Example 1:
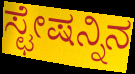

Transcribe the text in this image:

ಸ್ಟೇಷನ್ನಿನ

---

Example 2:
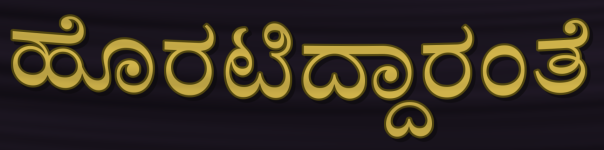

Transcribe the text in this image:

ಹೊರಟಿದ್ದಾರಂತೆ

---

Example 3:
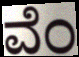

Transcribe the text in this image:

ವೆಂ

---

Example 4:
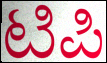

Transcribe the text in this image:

ಟಿಪಿ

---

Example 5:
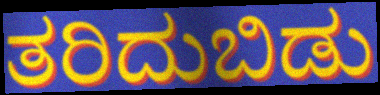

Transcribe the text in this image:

ತರಿದುಬಿಡು